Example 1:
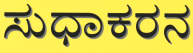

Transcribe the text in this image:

ಸುಧಾಕರನ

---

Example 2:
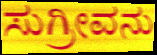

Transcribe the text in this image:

ಸುಗ್ರೀವನು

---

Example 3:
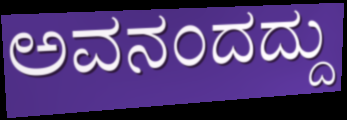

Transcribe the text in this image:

ಅವನಂದದ್ದು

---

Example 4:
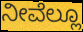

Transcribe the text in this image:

ನೀವೆಲ್ಲೂ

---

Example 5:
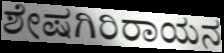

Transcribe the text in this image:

ಶೇಷಗಿರಿರಾಯನ